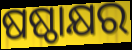
ଷଷ୍ଠାକ୍ଷର